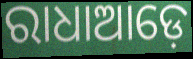
ରାଧାଆଡ଼େ